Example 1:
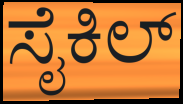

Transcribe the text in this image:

ಸೈಕಿಲ್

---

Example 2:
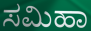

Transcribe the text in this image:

ಸಮಿಹಾ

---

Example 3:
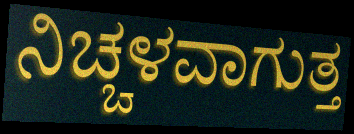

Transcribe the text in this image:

ನಿಚ್ಚಳವಾಗುತ್ತ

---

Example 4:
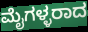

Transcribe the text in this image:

ಮೈಗಳ್ಳರಾದ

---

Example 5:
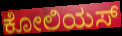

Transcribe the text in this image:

ಕೋಲಿಯಸ್